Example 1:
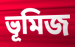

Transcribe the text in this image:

ভূমিজ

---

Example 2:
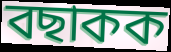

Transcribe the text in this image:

বছাকক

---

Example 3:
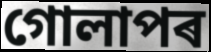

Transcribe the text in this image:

গোলাপৰ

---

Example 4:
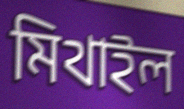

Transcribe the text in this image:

মিথাইল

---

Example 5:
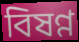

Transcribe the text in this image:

বিষণ্ন